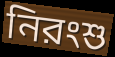
নিরংশু